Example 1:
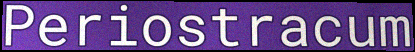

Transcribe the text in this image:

Periostracum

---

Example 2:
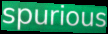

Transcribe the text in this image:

spurious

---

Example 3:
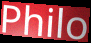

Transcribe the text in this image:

Philo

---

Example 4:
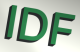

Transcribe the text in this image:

IDF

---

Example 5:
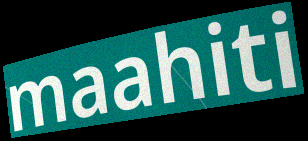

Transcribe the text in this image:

maahiti